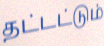
தட்டட்டும்